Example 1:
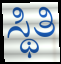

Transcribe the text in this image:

ಸ್ಥಿತಿ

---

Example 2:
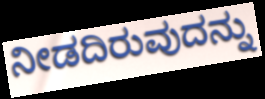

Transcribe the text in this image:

ನೀಡದಿರುವುದನ್ನು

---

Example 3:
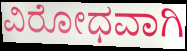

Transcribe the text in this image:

ವಿರೋಧವಾಗಿ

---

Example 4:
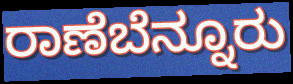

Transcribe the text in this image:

ರಾಣೆಬೆನ್ನೂರು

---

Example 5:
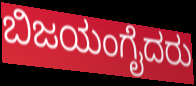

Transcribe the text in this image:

ಬಿಜಯಂಗೈದರು